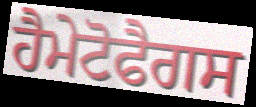
ਹੈਮੇਟੋਫੈਗਸ